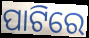
ପାଟିରେ